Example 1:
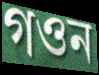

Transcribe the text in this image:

গওন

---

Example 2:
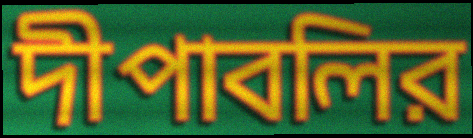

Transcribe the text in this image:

দীপাবলির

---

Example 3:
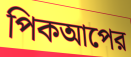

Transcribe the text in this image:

পিকআপের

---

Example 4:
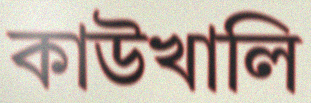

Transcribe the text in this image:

কাউখালি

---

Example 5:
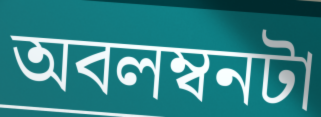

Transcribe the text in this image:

অবলম্বনটা